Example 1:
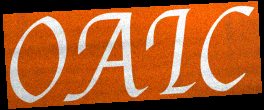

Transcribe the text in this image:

OAIC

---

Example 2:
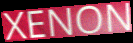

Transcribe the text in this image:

XENON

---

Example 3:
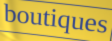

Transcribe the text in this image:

boutiques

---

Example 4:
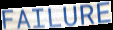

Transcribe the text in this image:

FAILURE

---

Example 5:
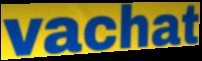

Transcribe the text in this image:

vachat